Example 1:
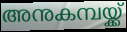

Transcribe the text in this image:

അനുകമ്പയ്ക്ക്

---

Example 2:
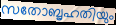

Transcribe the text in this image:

സതോബൃഹതിയും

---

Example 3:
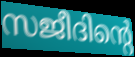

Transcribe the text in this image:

സജീദിന്റെ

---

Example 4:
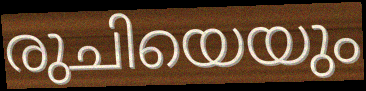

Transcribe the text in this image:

രുചിയെയും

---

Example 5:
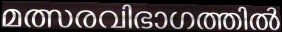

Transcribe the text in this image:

മത്സരവിഭാഗത്തിൽ